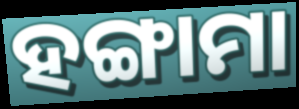
ହଙ୍ଗାମା